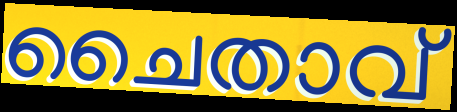
ചൈതാവ്